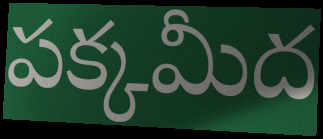
పక్కమీద